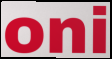
oni